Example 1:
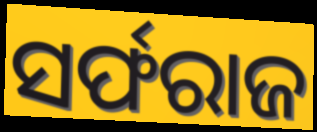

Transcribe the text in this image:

ସର୍ଫରାଜ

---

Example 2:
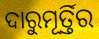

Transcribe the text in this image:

ଦାରୁମୂର୍ତ୍ତିର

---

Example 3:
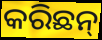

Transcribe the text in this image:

କରିଛନ୍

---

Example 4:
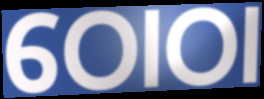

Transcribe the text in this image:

ଠୋଠା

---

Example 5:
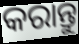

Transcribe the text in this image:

କରାନ୍ତୁ